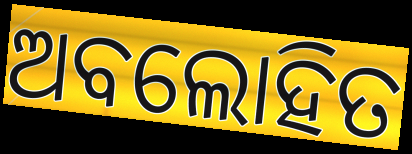
ଅବଲୋହିତ